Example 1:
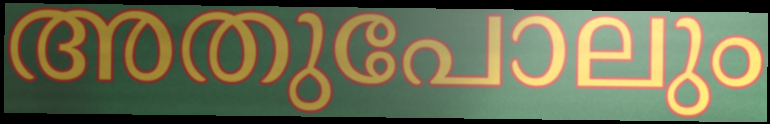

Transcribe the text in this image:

അതുപോലും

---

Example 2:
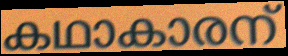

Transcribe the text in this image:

കഥാകാരന്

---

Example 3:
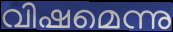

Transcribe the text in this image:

വിഷമെന്നു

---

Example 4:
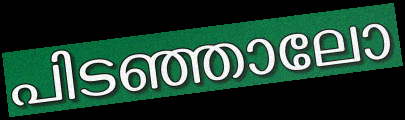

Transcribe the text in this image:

പിടഞ്ഞാലോ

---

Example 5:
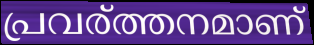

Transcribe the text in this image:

പ്രവര്ത്തനമാണ്